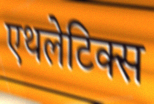
एथलेटिक्स